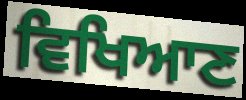
ਵਿਖਿਆਣ